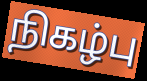
நிகழ்பு